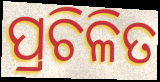
ପ୍ରଚିଳିତ